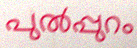
പുൽപ്പുറം